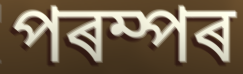
পৰম্পৰ